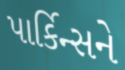
પાર્કિન્સને